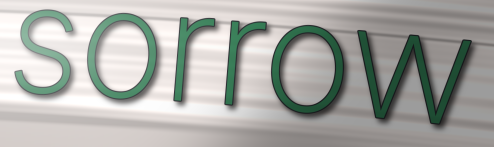
sorrow